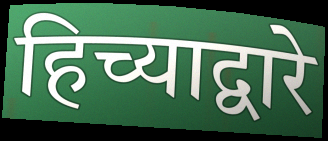
हिच्याद्वारे